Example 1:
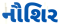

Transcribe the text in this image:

નૌશિર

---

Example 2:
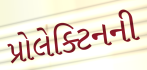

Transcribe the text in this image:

પ્રોલેક્ટિનની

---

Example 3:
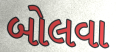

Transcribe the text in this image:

બોલવા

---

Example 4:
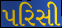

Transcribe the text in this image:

પરિસી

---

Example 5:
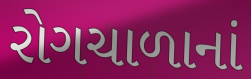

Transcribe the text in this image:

રોગચાળાનાં